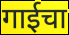
गाईचा